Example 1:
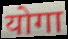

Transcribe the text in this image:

योगा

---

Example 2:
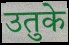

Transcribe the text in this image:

उतुके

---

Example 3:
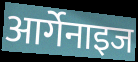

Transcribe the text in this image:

आर्गेनाइज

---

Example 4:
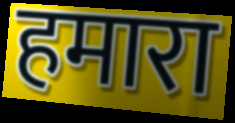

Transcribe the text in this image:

हमारा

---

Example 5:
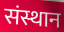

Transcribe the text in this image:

संस्थान